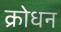
क्रोधन